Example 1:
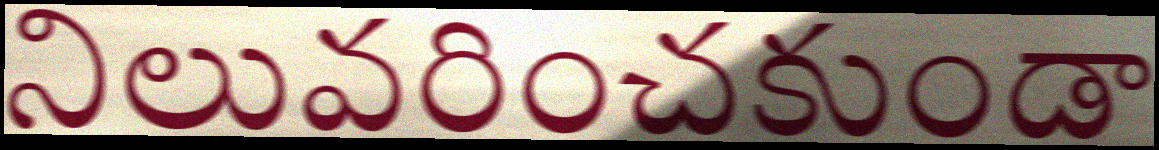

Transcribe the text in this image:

నిలువరించకుండా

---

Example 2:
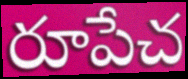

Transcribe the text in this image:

రూపేచ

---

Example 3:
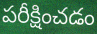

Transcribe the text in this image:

పరీక్షించడం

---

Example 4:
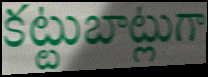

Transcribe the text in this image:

కట్టుబాట్లుగా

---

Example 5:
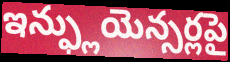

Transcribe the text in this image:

ఇన్ఫ్లుయెన్సర్లపై